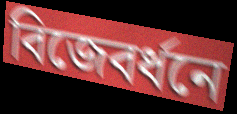
বিজেবর্ধনে